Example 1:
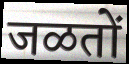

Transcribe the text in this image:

जळतों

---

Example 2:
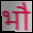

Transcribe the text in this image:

भौ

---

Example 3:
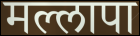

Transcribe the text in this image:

मल्लापा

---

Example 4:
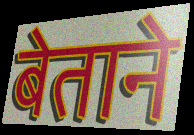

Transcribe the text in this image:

बेताने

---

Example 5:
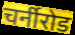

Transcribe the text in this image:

चर्नीरोड